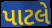
પાટલે